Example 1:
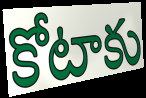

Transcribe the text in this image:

కోటాకు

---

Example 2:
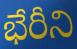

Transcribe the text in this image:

భేరీని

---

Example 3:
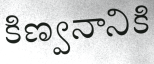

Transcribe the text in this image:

కిణ్వనానికి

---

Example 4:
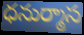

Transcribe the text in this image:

ధనుర్మాస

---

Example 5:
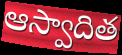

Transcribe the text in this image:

ఆస్వాదిత